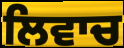
ਲਿਵਾਚ